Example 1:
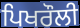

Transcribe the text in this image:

ਪਿਖਰੌਲੀ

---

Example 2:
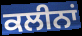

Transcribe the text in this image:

ਕਲੀਨਾਂ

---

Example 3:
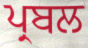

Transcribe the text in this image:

ਪ੍ਰਬਲ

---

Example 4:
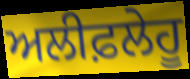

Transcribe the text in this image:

ਅਲੀਫ਼ਲੇਹੂ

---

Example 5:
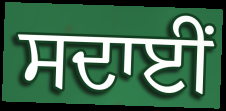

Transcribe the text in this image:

ਸਦਾਈਂ